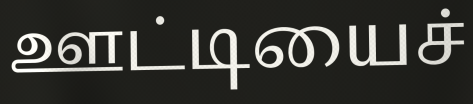
ஊட்டியைச்